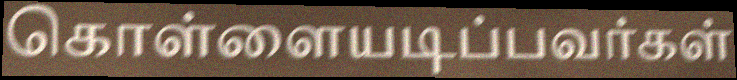
கொள்ளையடிப்பவர்கள்